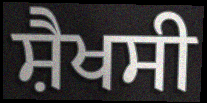
ਸ਼ੈਖਸੀ